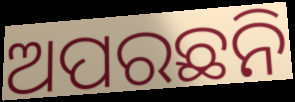
ଅପରଛନି